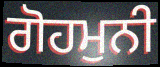
ਗੋਹਮੁਨੀ